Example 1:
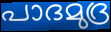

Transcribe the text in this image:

പാദമുദ്ര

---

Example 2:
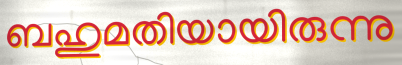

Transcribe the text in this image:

ബഹുമതിയായിരുന്നു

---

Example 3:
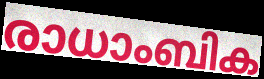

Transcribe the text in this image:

രാധാംബിക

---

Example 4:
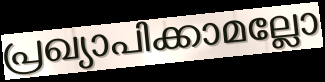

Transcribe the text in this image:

പ്രഖ്യാപിക്കാമല്ലോ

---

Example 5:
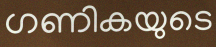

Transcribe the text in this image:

ഗണികയുടെ